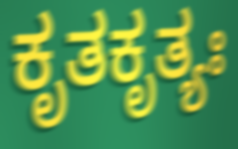
ಕೃತಕೃತ್ಯಃ